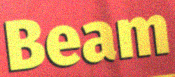
Beam